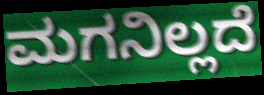
ಮಗನಿಲ್ಲದೆ